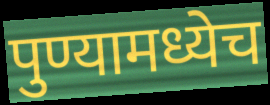
पुण्यामध्येच